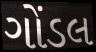
ગોંડલ